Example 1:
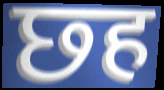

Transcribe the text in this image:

छ्ह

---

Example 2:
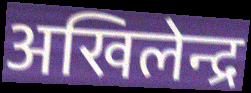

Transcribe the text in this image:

अखिलेन्द्र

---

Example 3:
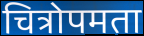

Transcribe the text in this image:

चित्रोपमता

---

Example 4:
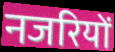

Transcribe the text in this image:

नजरियों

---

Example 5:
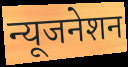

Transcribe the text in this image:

न्यूजनेशन